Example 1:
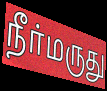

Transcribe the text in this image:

நீர்மருது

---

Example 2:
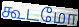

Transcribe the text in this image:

கூடமோ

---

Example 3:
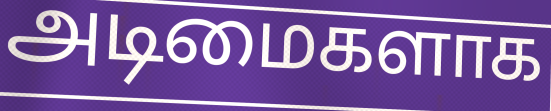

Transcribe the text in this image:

அடிமைகளாக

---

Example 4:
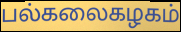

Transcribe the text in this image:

பல்கலைகழகம்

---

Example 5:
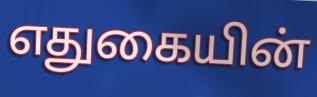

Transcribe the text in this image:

எதுகையின்